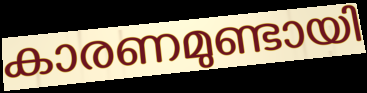
കാരണമുണ്ടായി